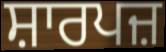
ਸ਼ਾਰਪਜ਼